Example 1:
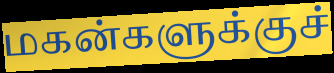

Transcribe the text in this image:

மகன்களுக்குச்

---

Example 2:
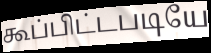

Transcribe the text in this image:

கூப்பிட்டபடியே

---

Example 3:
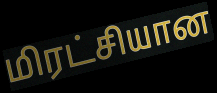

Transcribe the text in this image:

மிரட்சியான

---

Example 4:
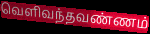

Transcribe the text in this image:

வெளிவந்தவண்ணம்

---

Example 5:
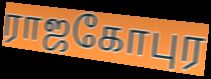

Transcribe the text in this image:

ராஜகோபுர